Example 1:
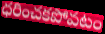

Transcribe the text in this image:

ధరించకపోవటం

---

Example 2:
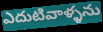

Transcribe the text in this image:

ఎదుటివాళ్ళను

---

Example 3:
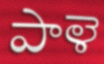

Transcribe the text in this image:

పాళె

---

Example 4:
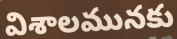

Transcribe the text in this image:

విశాలమునకు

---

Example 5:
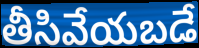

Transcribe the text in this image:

తీసివేయబడే